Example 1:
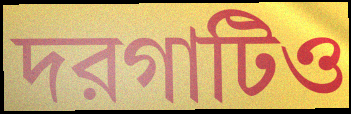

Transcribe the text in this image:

দরগাটিও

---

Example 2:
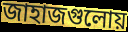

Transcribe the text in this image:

জাহাজগুলোয়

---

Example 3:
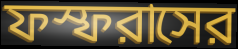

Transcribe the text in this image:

ফস্ফরাসের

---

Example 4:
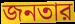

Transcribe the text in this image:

জনতার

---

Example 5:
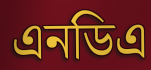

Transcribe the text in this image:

এনডিএ